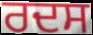
ਰਦਸ